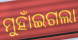
ମୁହାଁଇଗଲା